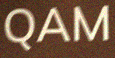
QAM